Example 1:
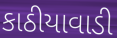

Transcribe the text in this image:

કાઠીયાવાડી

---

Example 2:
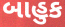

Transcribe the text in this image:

બાહુક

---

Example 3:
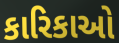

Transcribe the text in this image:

કારિકાઓ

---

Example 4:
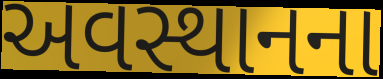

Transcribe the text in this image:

અવસ્થાનના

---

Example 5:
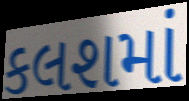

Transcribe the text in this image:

કલશમાં